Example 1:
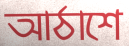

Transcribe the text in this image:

আঠাশে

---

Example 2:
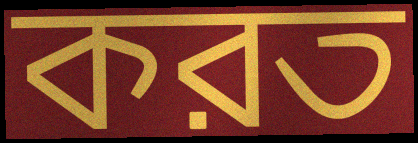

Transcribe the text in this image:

করত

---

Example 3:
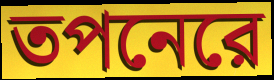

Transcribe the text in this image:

তপনেরে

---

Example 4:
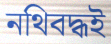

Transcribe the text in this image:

নথিবদ্ধই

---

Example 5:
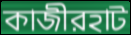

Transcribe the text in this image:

কাজীরহাট